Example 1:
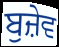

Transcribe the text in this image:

ਬੁਜ਼ੇਵ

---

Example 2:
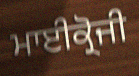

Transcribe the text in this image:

ਮਾਈਕ੍ਰੋਜੀ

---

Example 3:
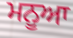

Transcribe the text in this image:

ਮਨੂਆ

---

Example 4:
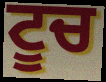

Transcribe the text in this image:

ਟੂਚ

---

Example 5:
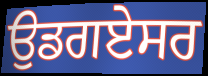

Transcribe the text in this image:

ਉਡਗਏਸਰ